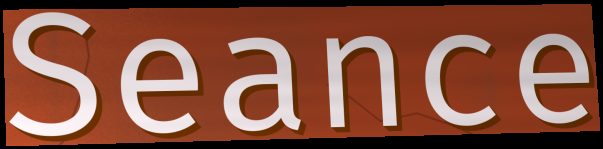
Seance